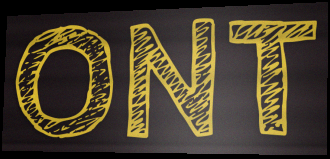
ONT